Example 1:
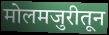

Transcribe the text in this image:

मोलमजुरीतून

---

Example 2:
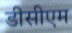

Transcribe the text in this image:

डीसीएम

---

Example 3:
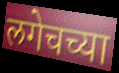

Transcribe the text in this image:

लगेचच्या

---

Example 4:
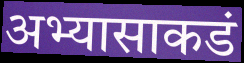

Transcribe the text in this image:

अभ्यासाकडं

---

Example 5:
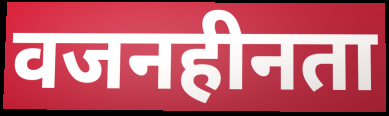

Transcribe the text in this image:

वजनहीनता